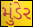
મુંડેર